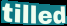
tilled